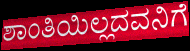
ಶಾಂತಿಯಿಲ್ಲದವನಿಗೆ